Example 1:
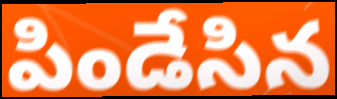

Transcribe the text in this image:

పిండేసిన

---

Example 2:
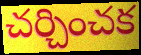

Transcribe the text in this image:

చర్చించక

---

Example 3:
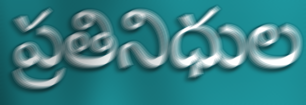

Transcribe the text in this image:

ప్రతినిధుల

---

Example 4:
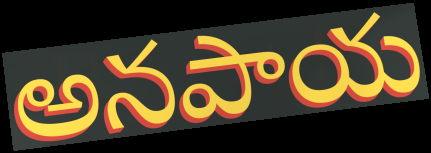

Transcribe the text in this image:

అనపాయ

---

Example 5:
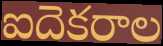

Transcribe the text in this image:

ఐదెకరాల